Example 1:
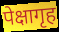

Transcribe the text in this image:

पेक्षागृह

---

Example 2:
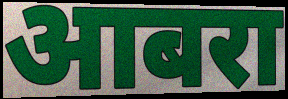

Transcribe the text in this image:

आबरा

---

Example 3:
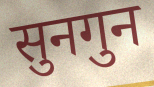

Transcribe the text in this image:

सुनगुन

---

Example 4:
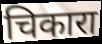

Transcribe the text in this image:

चिकारा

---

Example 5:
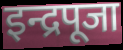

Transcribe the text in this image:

इन्द्रपूजा